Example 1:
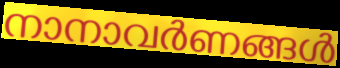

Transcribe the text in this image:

നാനാവർണങ്ങൾ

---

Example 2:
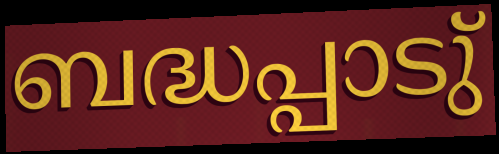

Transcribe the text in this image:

ബദ്ധപ്പാടു്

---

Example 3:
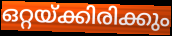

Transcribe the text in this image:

ഒറ്റയ്ക്കിരിക്കും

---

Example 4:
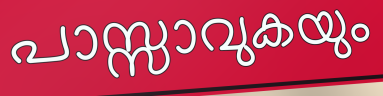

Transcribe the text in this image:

പാസ്സാവുകയും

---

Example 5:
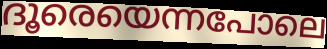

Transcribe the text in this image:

ദൂരെയെന്നപോലെ